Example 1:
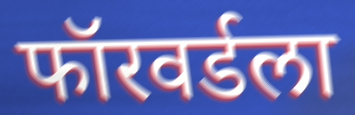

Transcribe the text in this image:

फॉरवर्डला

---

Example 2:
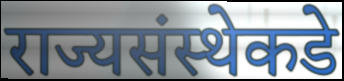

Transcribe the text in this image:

राज्यसंस्थेकडे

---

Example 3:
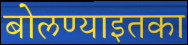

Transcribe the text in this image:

बोलण्याइतका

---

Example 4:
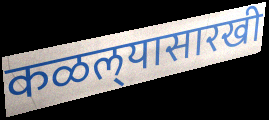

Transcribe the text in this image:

कळल्यासारखी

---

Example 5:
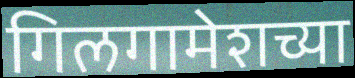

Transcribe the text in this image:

गिलगामेशच्या